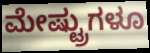
ಮೇಷ್ಟ್ರುಗಳೂ